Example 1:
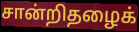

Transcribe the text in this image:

சான்றிதழைக்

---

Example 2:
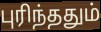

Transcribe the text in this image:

புரிந்ததும்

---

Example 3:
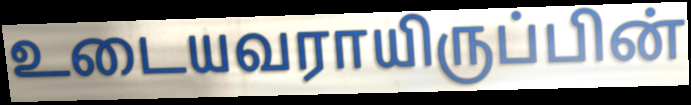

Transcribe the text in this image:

உடையவராயிருப்பின்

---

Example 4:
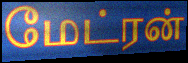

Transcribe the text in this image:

மேட்ரன்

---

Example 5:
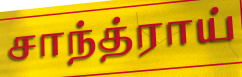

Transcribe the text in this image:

சாந்த்ராய்